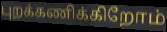
புறக்கணிக்கிறோம்